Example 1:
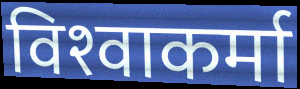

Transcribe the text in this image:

विश्वाकर्मा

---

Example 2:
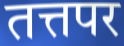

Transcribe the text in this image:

तत्तपर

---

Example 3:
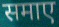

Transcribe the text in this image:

समाए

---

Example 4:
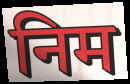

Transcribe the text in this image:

निम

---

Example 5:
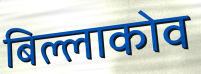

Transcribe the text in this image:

बिल्लाकोव